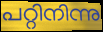
പറ്റിനിന്നു